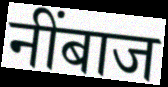
नींबाज